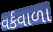
વર્કવાળા